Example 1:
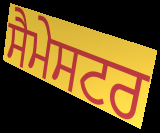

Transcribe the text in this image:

ਸੈਮੇਸਟਰ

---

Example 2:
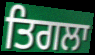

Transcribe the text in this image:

ਤਿਗਲਾ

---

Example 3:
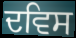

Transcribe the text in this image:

ਦਵਿਸ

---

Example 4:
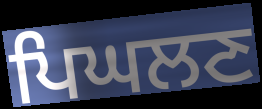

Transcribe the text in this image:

ਪਿਘਲਣ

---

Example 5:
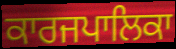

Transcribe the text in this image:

ਕਾਰਜਪਾਲਿਕਾ